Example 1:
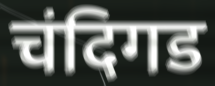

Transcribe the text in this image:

चंदिगड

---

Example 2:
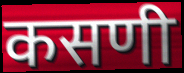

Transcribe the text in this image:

कसणी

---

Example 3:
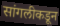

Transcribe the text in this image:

सांगलीकडून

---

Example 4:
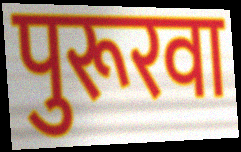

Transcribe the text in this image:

पुरूरवा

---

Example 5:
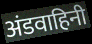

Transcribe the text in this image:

अंडवाहिनी